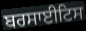
ਬਰਸਾਈਟਿਸ